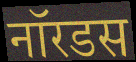
नॉरडस